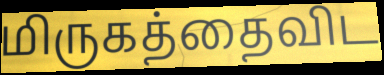
மிருகத்தைவிட